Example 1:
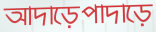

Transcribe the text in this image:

আদাড়েপাদাড়ে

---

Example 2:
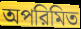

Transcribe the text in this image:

অপরিমিত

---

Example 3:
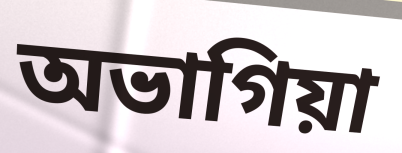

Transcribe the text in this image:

অভাগিয়া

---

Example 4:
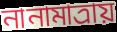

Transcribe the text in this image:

নানামাত্রায়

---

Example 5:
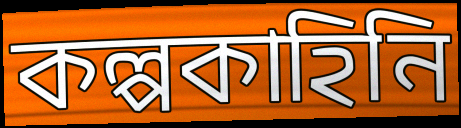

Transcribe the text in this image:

কল্পকাহিনি